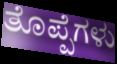
ತೊಪ್ಪೆಗಳು